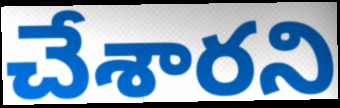
చేశారని